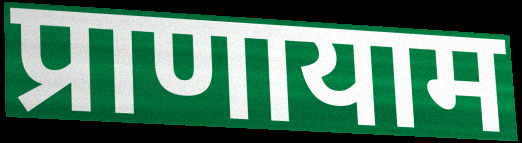
प्राणायाम